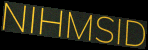
NIHMSID